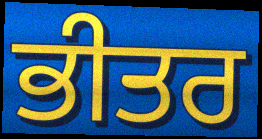
ਭੀਤਰ